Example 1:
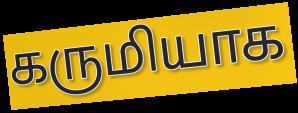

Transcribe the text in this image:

கருமியாக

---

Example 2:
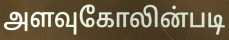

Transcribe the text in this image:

அளவுகோலின்படி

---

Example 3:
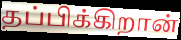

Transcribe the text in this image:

தப்பிக்கிறான்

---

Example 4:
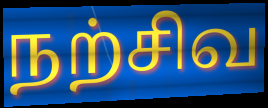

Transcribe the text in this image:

நற்சிவ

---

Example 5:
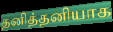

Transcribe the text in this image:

தனித்தனியாக